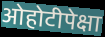
ओहोटीपेक्षा